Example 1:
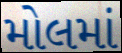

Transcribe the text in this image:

મોલમાં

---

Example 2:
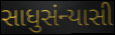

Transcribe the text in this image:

સાધુસંન્યાસી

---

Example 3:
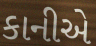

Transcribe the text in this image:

કાનીએ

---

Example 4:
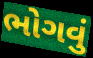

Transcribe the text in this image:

ભોગવું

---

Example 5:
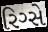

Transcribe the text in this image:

રિગ્સે